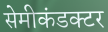
सेमीकंडक्टर